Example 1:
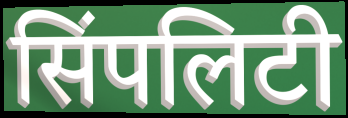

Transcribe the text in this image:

सिंपलिटी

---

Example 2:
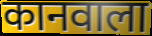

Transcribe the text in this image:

कानवाला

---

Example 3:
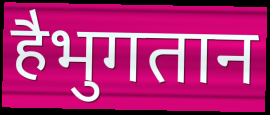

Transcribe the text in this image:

हैभुगतान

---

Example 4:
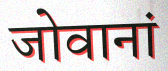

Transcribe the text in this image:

जोवानां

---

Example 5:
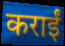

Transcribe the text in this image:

कराईं